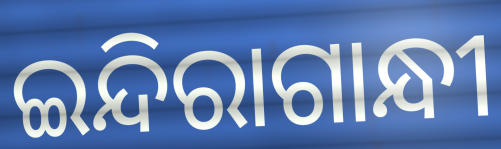
ଇନ୍ଦିରାଗାନ୍ଧୀ